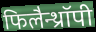
फिलैन्थ्रॉपी